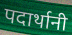
पदार्थानी